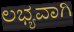
ಲಭ್ಯವಾಗಿ